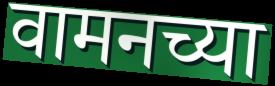
वामनच्या